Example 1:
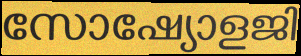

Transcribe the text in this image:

സോഷ്യോളജി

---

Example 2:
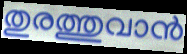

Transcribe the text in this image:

തുരത്തുവാൻ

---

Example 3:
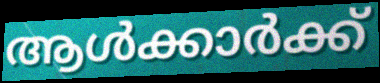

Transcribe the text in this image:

ആൾക്കാർക്ക്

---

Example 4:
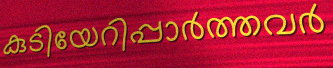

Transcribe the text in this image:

കുടിയേറിപ്പാർത്തവർ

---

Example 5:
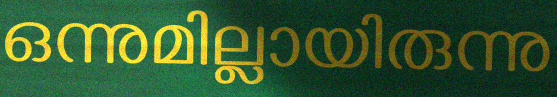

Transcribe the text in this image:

ഒന്നുമില്ലായിരുന്നു